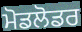
ਮੋਡਲੋਡਰ